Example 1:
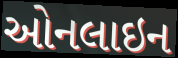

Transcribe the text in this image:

ઓનલાઇન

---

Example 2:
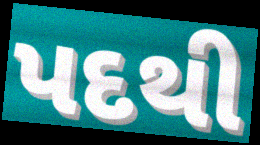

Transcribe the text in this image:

પદથી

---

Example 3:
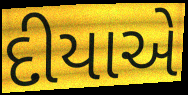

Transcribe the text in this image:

દીયાએ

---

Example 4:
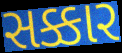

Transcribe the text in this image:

સક્કાર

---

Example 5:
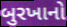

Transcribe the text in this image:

બુરખાનો